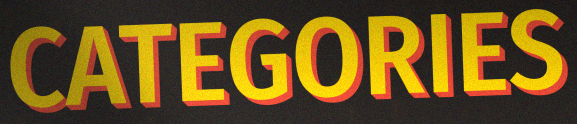
CATEGORIES